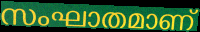
സംഘാതമാണ്